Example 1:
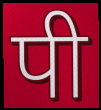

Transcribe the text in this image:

पी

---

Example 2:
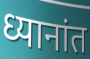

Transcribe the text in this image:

ध्यानांत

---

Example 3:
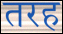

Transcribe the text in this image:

तरह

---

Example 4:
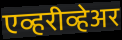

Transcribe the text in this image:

एव्हरीव्हेअर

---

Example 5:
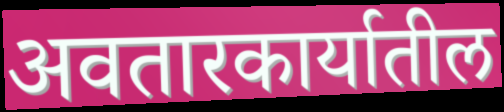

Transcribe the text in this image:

अवतारकार्यातील